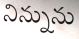
నిన్నును